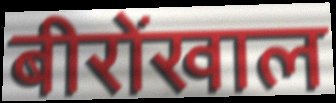
बीरोंखाल